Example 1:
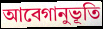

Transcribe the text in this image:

আবেগানুভূতি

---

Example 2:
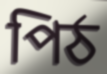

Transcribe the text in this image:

পিঠ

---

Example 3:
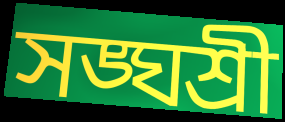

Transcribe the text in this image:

সঙ্ঘশ্রী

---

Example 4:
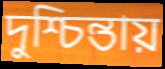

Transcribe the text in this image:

দুশ্চিন্তায়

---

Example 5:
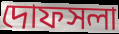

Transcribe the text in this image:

দোফসলা